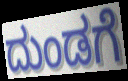
ದುಂಡಗೆ